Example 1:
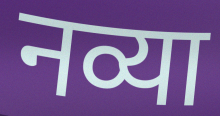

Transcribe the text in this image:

नव्या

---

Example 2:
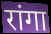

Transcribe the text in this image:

रांगा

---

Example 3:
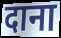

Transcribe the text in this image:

दाना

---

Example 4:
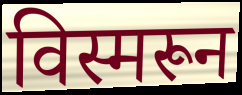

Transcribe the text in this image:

विस्मरून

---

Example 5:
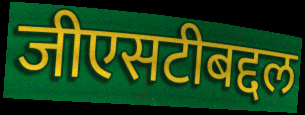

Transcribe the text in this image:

जीएसटीबद्दल